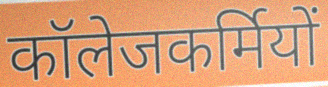
कॉलेजकर्मियों